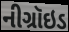
નીગ્રૉઇડ